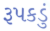
રૂપકડું